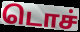
டொச்